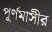
পূর্ণমাসীর